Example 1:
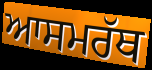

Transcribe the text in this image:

ਆਸਮਰੱਥ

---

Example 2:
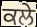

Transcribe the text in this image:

ਕਲੇ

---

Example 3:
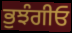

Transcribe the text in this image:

ਭੁਝੰਗੀਓ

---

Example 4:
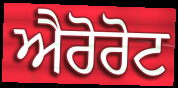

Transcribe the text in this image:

ਐਰੋਰੋਟ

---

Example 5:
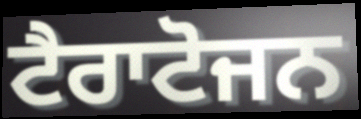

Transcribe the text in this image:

ਟੈਰਾਟੋਜਨ